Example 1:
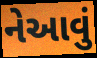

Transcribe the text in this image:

નેઆવું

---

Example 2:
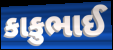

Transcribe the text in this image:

કાકુભાઈ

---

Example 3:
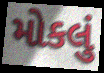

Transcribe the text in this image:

મોકલું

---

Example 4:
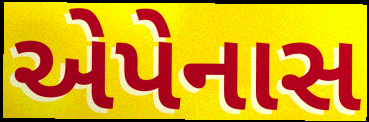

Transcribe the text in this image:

એપેનાસ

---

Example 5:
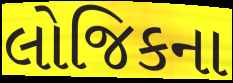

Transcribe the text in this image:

લોજિકના